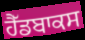
ਹੈੱਡਬਾਕਸ